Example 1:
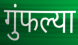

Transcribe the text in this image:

गुंफल्या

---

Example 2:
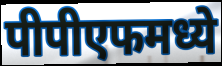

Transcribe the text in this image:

पीपीएफमध्ये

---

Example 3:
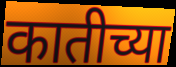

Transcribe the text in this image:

कातीच्या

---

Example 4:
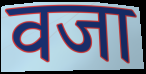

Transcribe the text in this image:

वजा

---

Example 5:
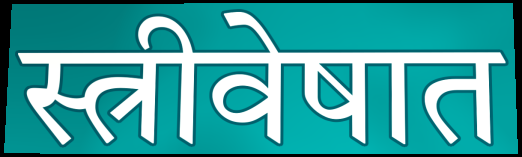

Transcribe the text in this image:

स्त्रीवेषात